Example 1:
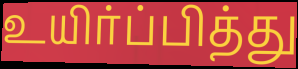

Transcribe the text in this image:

உயிர்ப்பித்து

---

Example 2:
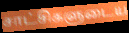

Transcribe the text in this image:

சாட்சிகளுடைய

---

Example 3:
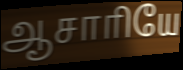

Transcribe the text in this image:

ஆசாரியே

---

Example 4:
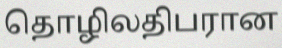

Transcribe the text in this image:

தொழிலதிபரான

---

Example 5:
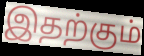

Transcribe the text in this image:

இதற்கும்